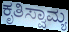
ಕೃತಿಸ್ವಾಮ್ಯ